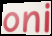
oni